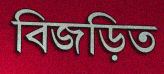
বিজড়িত